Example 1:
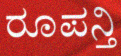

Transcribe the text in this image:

ರೂಪನ್ತಿ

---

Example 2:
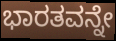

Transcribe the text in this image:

ಭಾರತವನ್ನೇ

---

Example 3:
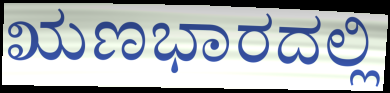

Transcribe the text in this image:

ಋಣಭಾರದಲ್ಲಿ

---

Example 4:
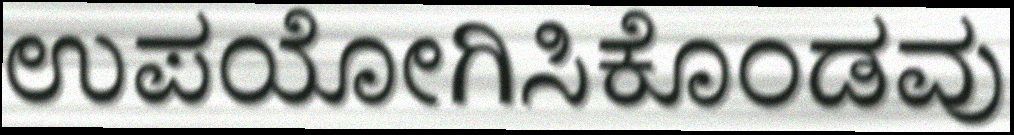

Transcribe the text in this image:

ಉಪಯೋಗಿಸಿಕೊಂಡವು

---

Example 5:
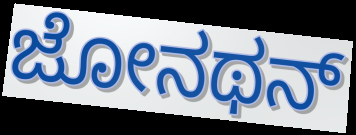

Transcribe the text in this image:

ಜೋನಥನ್